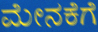
ಮೇನಕೆಗೆ